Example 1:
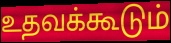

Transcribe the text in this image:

உதவக்கூடும்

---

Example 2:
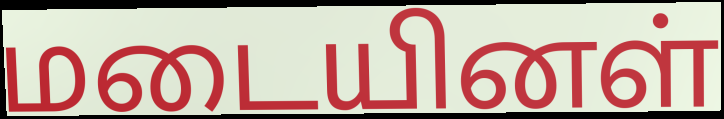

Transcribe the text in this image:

மடையினள்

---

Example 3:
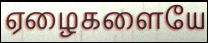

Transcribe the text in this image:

ஏழைகளையே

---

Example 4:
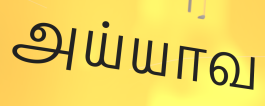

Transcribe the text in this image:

அய்யாவ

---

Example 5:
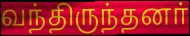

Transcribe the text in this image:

வந்திருந்தனர்